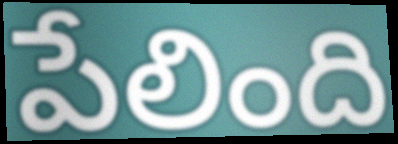
పేలింది